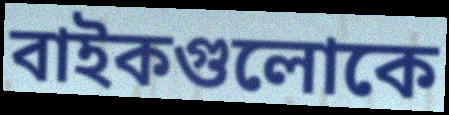
বাইকগুলোকে